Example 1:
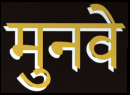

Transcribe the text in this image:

मुनवे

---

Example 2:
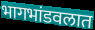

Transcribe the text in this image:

भागभांडवलात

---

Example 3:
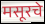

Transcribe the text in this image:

मसूरचे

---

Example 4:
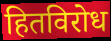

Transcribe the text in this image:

हितविरोध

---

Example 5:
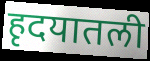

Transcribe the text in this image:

हृदयातली